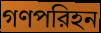
গণপরিহন